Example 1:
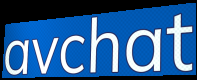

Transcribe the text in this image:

avchat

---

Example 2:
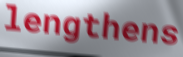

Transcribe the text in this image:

lengthens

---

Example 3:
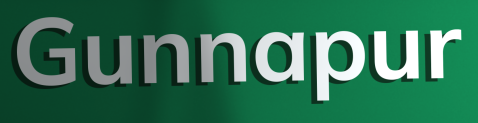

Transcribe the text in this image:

Gunnapur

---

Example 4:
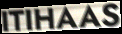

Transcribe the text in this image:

ITIHAAS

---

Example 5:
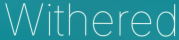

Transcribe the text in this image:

Withered